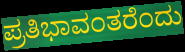
ಪ್ರತಿಭಾವಂತರೆಂದು